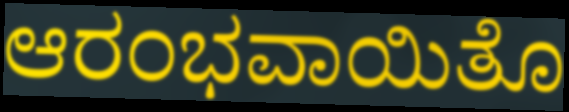
ಆರಂಭವಾಯಿತೊ